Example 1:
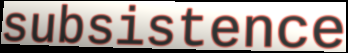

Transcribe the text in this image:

subsistence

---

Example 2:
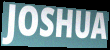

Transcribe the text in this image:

JOSHUA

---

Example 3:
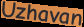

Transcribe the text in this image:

Uzhavan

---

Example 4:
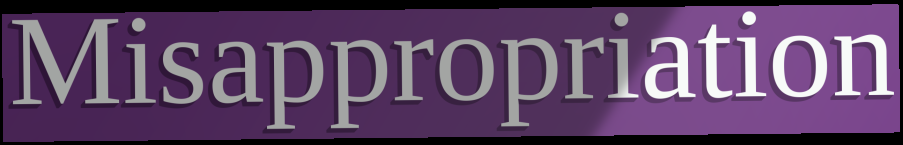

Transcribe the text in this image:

Misappropriation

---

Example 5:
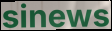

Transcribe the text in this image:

sinews